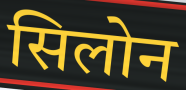
सिलोन